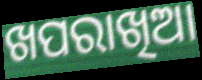
ଖପରାଖିଆ